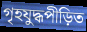
গৃহযুদ্ধপীড়িত